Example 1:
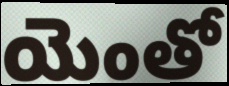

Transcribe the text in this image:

యెంతో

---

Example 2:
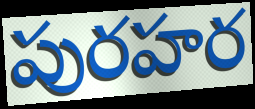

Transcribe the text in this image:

పురహర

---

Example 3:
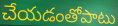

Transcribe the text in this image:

చేయడంతోపాటు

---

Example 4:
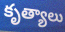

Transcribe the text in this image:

కృత్యాలు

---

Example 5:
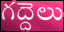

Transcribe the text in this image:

గద్దెలు